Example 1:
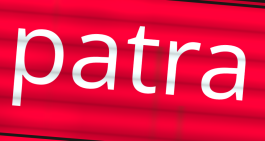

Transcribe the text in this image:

patra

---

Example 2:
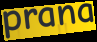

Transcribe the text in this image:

prana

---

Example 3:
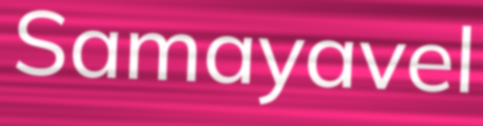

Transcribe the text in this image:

Samayavel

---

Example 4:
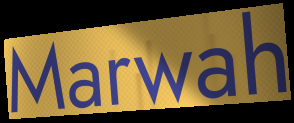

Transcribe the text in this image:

Marwah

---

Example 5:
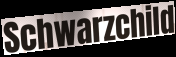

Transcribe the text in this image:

Schwarzchild